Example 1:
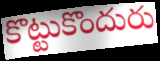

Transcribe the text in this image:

కొట్టుకొందురు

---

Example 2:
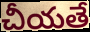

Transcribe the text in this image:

చీయతే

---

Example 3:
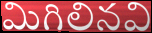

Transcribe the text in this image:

మిగిలినవి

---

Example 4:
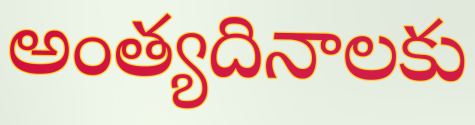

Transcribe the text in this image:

అంత్యదినాలకు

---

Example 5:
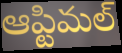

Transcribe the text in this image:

ఆప్టిమల్